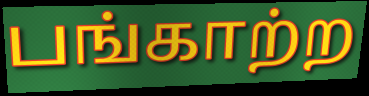
பங்காற்ற